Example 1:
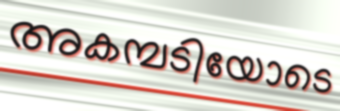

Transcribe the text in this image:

അകമ്പടിയോടെ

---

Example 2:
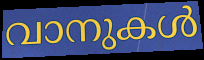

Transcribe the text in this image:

വാനുകൾ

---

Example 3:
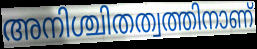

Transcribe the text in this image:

അനിശ്ചിതത്വത്തിനാണ്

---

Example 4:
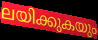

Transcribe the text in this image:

ലയിക്കുകയും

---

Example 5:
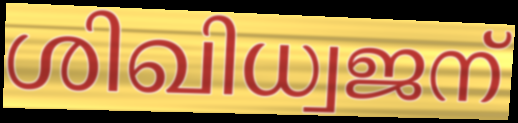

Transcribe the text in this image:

ശിഖിധ്വജന്